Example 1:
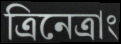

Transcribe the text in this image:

ত্রিনেত্রাং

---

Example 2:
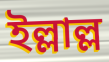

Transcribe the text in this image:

ইল্লাল্ল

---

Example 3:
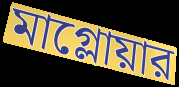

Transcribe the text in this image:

মাগ্লোয়ার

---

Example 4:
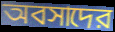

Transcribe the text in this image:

অবসাদের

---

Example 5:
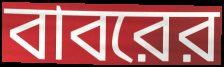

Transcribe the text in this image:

বাবরের